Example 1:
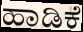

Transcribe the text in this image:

ಹಾಡಿಕೆ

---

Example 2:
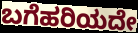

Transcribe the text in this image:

ಬಗೆಹರಿಯದೇ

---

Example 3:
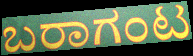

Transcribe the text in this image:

ಬರಾಗಂಟ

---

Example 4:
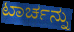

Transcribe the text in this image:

ಟಾರ್ಚನ್ನು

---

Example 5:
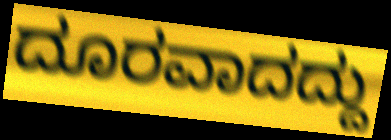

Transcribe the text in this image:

ದೂರವಾದದ್ದು